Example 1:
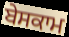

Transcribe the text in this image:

ਬੇਸਕਾਮ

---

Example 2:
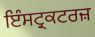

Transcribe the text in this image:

ਇੰਸਟ੍ਰਕਟਰਜ਼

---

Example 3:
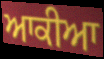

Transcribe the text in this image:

ਆਕੀਆ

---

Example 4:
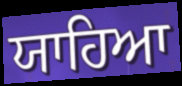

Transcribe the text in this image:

ਯਾਹਿਆ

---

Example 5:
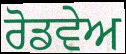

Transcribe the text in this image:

ਰੋਡਵੇਅ